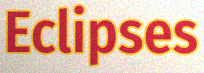
Eclipses